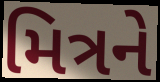
મિત્રને